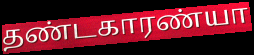
தண்டகாரண்யா